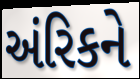
અંરિકને